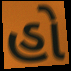
હો